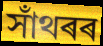
সাঁথৰৰ